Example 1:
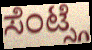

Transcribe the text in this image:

ಸೆಂಟ್ಸ್ಗೆ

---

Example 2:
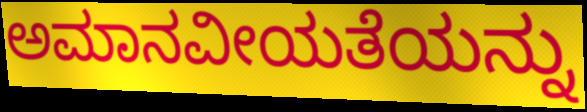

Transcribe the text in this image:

ಅಮಾನವೀಯತೆಯನ್ನು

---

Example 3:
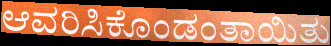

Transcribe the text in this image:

ಆವರಿಸಿಕೊಂಡಂತಾಯಿತು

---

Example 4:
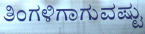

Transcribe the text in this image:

ತಿಂಗಳಿಗಾಗುವಷ್ಟು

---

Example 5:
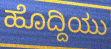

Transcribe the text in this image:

ಹೊದ್ದಿಯು